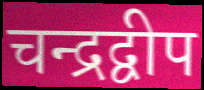
चन्द्रद्वीप